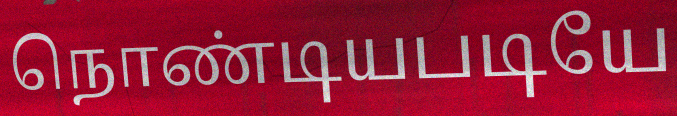
நொண்டியபடியே